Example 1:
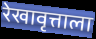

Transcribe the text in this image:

रेखावृत्ताला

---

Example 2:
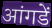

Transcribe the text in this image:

आंगडें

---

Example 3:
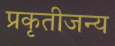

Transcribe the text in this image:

प्रकृतीजन्य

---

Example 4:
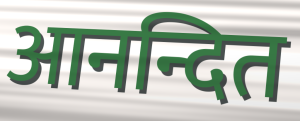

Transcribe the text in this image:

आनन्दित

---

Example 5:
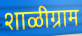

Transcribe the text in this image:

शाळीग्राम